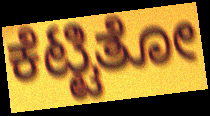
ಕೆಟ್ಟಿತೋ